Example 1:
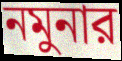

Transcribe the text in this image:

নমুনার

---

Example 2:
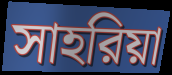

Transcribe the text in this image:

সাহরিয়া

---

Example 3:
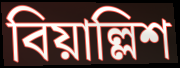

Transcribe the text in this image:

বিয়াল্লিশ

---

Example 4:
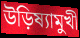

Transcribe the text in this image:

উড়িষ্যামুখী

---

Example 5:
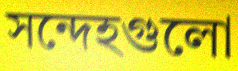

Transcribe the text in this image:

সন্দেহগুলো